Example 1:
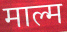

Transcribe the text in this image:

माल्म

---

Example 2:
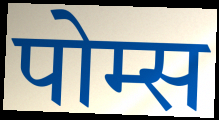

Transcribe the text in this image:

पोम्स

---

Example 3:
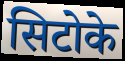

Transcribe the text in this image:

सिटोके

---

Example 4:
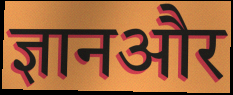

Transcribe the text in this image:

ज्ञानऔर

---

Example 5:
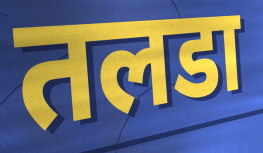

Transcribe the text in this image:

तलडा